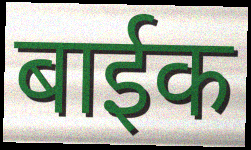
बाईक